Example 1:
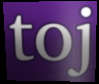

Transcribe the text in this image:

toj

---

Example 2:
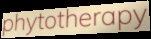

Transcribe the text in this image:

phytotherapy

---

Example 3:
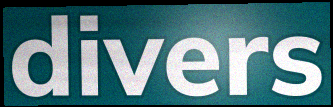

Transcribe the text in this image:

divers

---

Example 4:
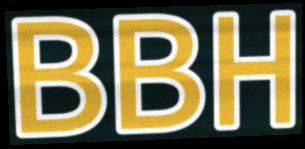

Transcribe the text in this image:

BBH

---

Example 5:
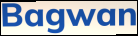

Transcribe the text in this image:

Bagwan